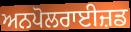
ਅਨਪੋਲਰਾਈਜ਼ਡ